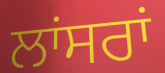
ਲਾਂਸਰਾਂ